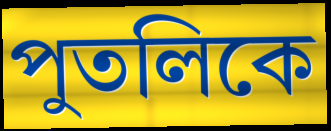
পুতলিকে